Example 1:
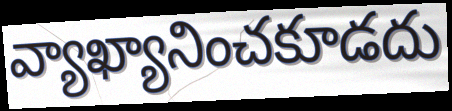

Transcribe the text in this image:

వ్యాఖ్యానించకూడదు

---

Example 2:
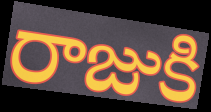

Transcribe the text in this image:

రాజుకి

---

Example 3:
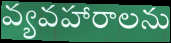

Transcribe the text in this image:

వ్యవహారాలను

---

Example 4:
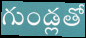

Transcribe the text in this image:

గుండ్లతో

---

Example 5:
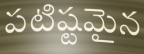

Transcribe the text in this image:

పటిష్టమైన